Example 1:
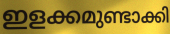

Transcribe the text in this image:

ഇളക്കമുണ്ടാക്കി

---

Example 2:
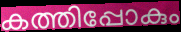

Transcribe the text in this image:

കത്തിപ്പോകും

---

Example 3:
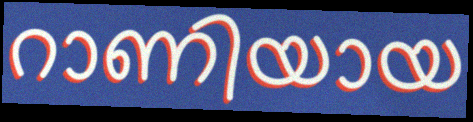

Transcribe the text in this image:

റാണിയായ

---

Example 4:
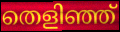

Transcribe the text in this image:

തെളിഞ്ഞ്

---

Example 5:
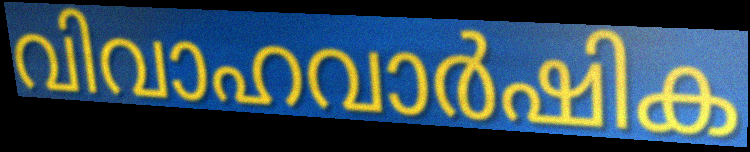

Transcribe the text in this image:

വിവാഹവാർഷിക